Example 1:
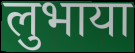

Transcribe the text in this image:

लुभाया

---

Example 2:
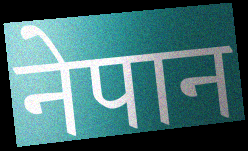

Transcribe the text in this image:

नेपान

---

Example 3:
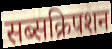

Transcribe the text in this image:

सब्सक्रिपशन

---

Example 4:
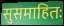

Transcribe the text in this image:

सुसमाहितः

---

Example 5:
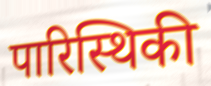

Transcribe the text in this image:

पारिस्थिकी